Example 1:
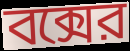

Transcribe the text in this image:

বক্সের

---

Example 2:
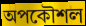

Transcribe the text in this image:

অপকৌশল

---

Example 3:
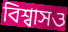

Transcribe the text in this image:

বিশ্বাসও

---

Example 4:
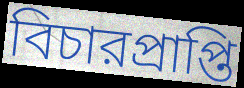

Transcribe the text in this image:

বিচারপ্রাপ্তি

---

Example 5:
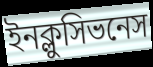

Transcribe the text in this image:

ইনক্লুসিভনেস